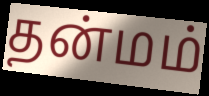
தன்மம்